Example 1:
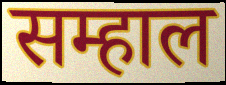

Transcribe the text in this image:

सम्हाल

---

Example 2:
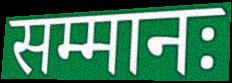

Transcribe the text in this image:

सम्मानः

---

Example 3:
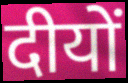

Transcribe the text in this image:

दीयों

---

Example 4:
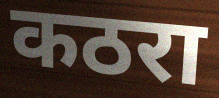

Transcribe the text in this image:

कठरा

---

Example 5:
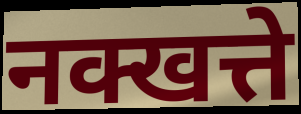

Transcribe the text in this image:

नक्खत्ते